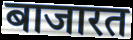
बाजारत